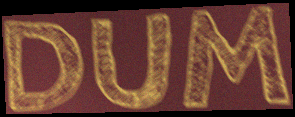
DUM